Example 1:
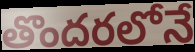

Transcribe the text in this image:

తొందరలోనే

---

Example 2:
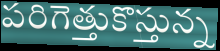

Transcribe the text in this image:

పరిగెత్తుకొస్తున్న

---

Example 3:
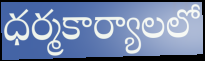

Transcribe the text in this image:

ధర్మకార్యాలలో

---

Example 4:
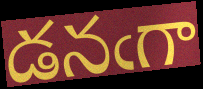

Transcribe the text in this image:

డనఁగా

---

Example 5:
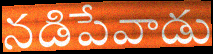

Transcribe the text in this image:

నడిపేవాడు